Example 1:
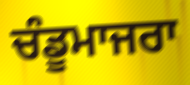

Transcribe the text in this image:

ਚੰਡੂਮਾਜਰਾ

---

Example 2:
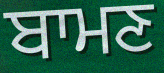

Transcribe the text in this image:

ਬਾਮਣ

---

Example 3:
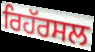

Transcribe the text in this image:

ਰਿਹੱਰਸਲ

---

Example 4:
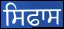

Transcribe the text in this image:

ਸਿਫਾਸ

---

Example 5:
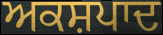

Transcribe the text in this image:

ਅਕਸ਼ਪਾਦ